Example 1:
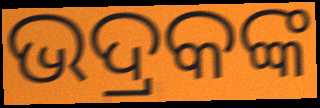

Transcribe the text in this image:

ଭଦ୍ରକଙ୍କ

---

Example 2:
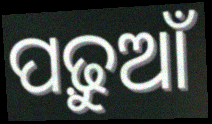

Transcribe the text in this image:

ପଢ଼ୁଆଁ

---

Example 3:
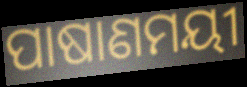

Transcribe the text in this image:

ପାଷାଣମୟୀ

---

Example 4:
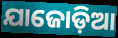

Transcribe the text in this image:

ଯାଜୋଡ଼ିଆ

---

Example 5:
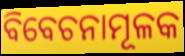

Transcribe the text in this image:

ବିବେଚନାମୂଳକ